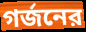
গর্জনের